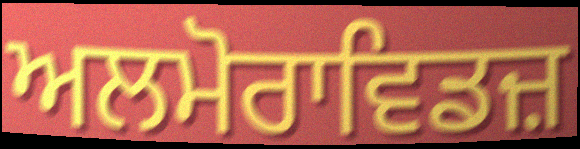
ਅਲਮੋਰਾਵਿਡਜ਼